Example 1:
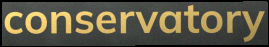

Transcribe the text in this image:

conservatory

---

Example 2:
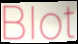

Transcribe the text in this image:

Blot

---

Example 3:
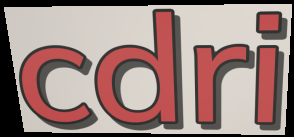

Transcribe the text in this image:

cdri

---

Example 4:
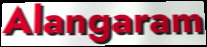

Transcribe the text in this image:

Alangaram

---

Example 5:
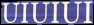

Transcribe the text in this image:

UIUIUI